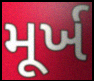
મૂર્ખ